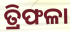
ତ୍ରିଫଳା